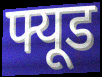
फ्यूड